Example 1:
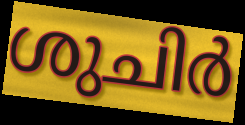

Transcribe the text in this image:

ശുചിർ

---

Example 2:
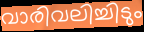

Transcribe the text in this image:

വാരിവലിച്ചിടും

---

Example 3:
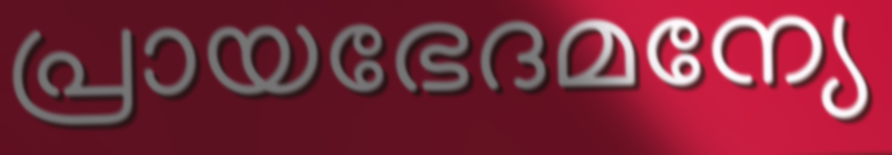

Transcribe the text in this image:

പ്രായഭേദമന്യേ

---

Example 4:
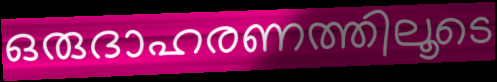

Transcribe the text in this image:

ഒരുദാഹരണത്തിലൂടെ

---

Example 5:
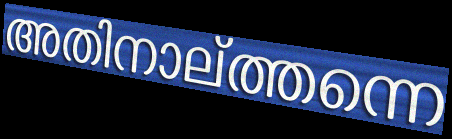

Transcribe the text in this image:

അതിനാല്ത്തന്നെ